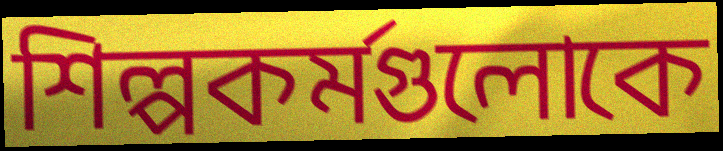
শিল্পকর্মগুলোকে